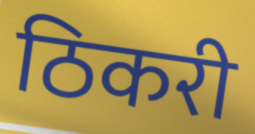
ठिकरी